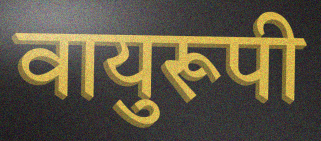
वायुरूपी